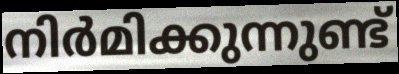
നിർമിക്കുന്നുണ്ട്